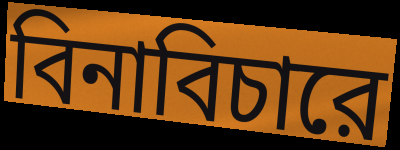
বিনাবিচারে